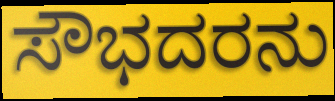
ಸೌಭದರನು